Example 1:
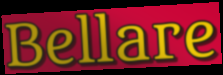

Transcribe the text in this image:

Bellare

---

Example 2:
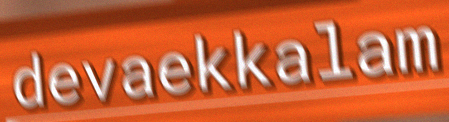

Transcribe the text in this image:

devaekkalam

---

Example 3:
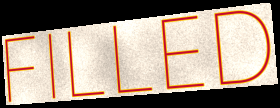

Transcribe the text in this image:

FILLED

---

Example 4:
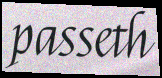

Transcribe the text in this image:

passeth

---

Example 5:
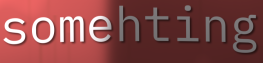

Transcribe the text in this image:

somehting